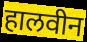
हालवीन